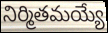
నిర్మితమయ్యే